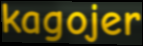
kagojer